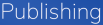
Publishing